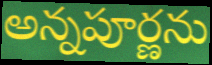
అన్నపూర్ణను